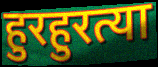
हुरहुरत्या